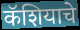
कॅशियाचे